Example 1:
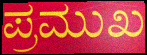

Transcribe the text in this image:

ಪ್ರಮುಖ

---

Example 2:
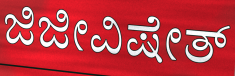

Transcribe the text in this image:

ಜಿಜೀವಿಷೇತ್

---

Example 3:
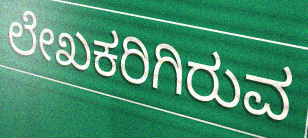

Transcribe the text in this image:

ಲೇಖಕರಿಗಿರುವ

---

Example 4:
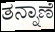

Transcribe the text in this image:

ತನ್ನಾಣೆ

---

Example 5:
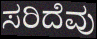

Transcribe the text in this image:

ಸರಿದೆವು